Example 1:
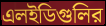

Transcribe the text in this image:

এলইডিগুলির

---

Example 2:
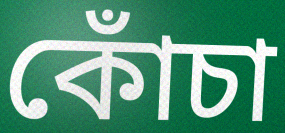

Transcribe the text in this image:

কোঁচা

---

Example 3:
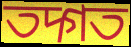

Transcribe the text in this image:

তদ্গত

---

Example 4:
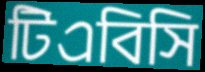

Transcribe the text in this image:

টিএবিসি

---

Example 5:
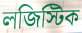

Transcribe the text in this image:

লজিস্টিক